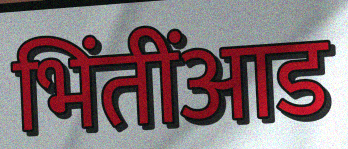
भिंतींआड